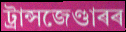
ট্ৰান্সজেণ্ডাৰৰ